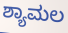
ಶ್ಯಾಮಲ